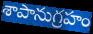
శాపానుగ్రహం